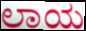
ಲಾಯ